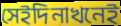
সেইদিনাখনেই